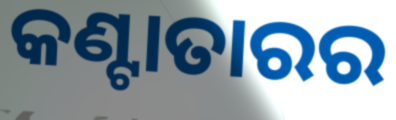
କଣ୍ଟାତାରର